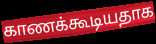
காணக்கூடியதாக